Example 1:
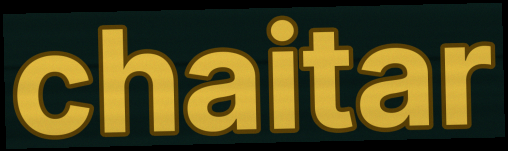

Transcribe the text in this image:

chaitar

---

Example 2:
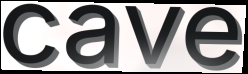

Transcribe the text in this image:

cave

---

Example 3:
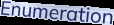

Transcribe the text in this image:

Enumeration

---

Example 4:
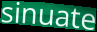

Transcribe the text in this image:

sinuate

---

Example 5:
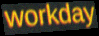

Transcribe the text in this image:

workday